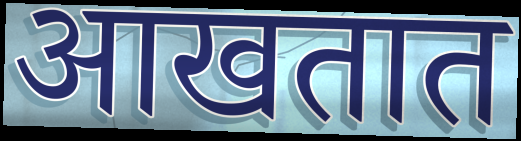
आखतात